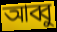
আব্বু